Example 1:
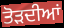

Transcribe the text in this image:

ਤੋੜਦੀਆਂ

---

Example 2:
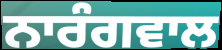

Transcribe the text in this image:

ਨਾਰੰਗਵਾਲ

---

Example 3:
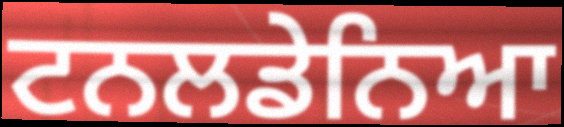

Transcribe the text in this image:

ਟਨਲਡੇਨਿਆ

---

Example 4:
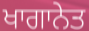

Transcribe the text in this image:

ਖਾਗਾਨੇਤ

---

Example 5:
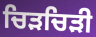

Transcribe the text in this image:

ਚਿੜਚਿੜੀ